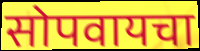
सोपवायचा